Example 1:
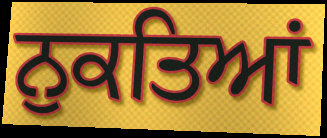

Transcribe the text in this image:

ਨੁਕਤਿਆਂ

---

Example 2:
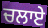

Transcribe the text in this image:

ਚਲਾਏ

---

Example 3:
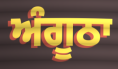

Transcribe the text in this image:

ਅੰਗੂਠਾ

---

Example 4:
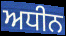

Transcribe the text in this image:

ਅਧੀਨ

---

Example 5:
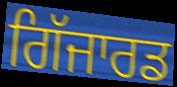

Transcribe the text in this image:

ਗਿੱਜਾਰਡ